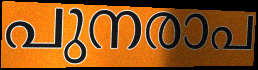
പുനരാപ